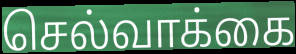
செல்வாக்கை